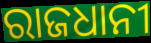
ରାଜଧାନୀ